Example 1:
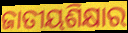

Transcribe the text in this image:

ଜାତୀୟଶିକ୍ଷାର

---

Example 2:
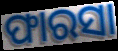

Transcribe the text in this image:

ଫାରସା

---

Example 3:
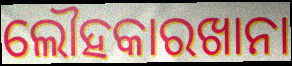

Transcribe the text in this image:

ଲୌହକାରଖାନା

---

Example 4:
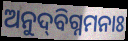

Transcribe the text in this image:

ଅନୁଦ୍‌ବିଗ୍ନମନାଃ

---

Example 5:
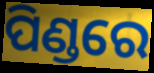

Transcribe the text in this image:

ପିଣ୍ଡରେ